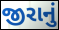
જીરાનું